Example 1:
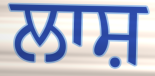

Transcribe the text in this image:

ਲਾਸ਼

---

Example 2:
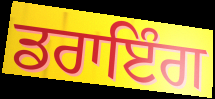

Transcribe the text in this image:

ਡਰਾਇੰਗ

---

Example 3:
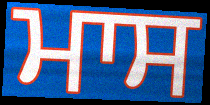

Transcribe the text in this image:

ਮਾਸ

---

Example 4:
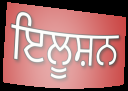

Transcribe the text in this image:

ਇਲੂਸ਼ਨ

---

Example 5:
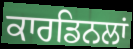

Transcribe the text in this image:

ਕਾਰਡਿਨਲਾਂ